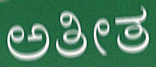
ಅತೀತ